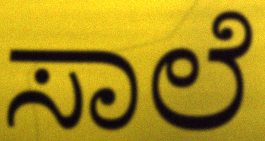
ಸಾಲೆ